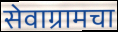
सेवाग्रामचा